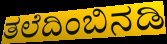
ತಲೆದಿಂಬಿನಡಿ